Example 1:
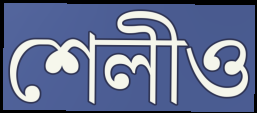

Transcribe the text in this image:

শেলীও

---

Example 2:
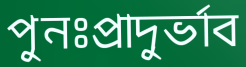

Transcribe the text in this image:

পুনঃপ্রাদুর্ভাব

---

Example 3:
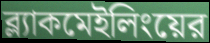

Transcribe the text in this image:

ব্ল্যাকমেইলিংয়ের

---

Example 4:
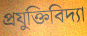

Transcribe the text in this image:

প্রযুক্তিবিদ্যা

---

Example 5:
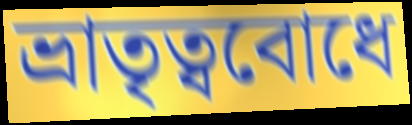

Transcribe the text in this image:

ভ্রাতৃত্ববোধে